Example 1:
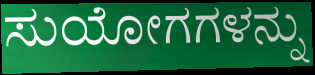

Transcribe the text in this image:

ಸುಯೋಗಗಳನ್ನು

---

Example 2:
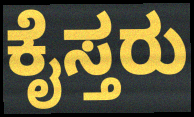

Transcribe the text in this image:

ಕೈಸ್ತರು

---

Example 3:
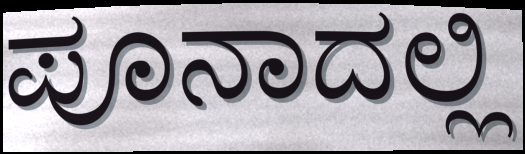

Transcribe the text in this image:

ಪೂನಾದಲ್ಲಿ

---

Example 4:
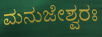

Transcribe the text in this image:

ಮನುಜೇಶ್ವರಃ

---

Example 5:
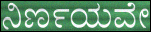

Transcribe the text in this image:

ನಿರ್ಣಯವೇ